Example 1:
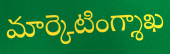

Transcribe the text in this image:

మార్కెటింగ్శాఖ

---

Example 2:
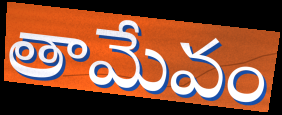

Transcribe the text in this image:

తామేవం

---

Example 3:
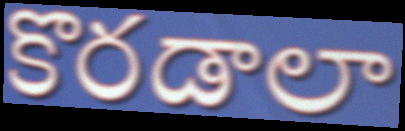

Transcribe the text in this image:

కొరడాలా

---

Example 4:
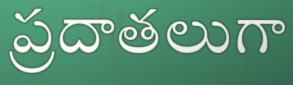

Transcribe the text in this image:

ప్రదాతలుగా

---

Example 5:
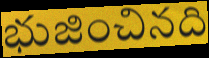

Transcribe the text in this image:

భుజించినది